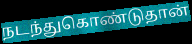
நடந்துகொண்டுதான்